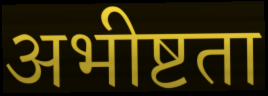
अभीष्टता